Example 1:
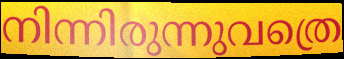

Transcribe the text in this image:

നിന്നിരുന്നുവത്രെ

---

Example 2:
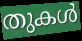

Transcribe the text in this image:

തുകൾ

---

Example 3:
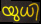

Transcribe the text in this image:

യുധി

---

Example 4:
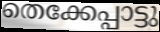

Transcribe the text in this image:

തെക്കേപ്പാട്ടു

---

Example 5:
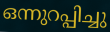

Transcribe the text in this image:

ഒന്നുറപ്പിച്ചു